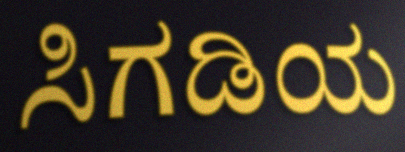
ಸಿಗಡಿಯ